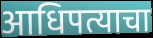
आधिपत्याचा